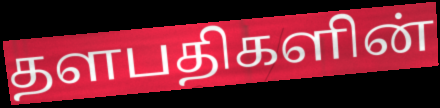
தளபதிகளின்